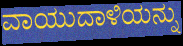
ವಾಯುದಾಳಿಯನ್ನು